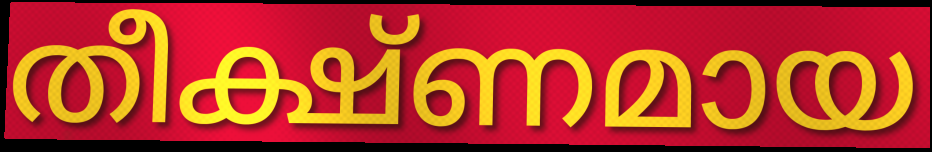
തീക്ഷ്ണമായ